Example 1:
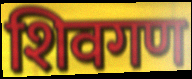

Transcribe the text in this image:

शिवगण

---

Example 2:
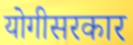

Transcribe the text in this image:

योगीसरकार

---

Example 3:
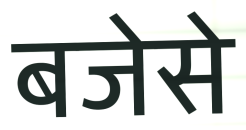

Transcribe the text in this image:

बजेसे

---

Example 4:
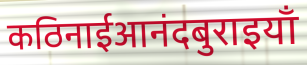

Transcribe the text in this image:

कठिनाईआनंदबुराइयाँ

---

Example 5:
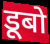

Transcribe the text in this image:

डूबो